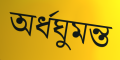
অর্ধঘুমন্ত